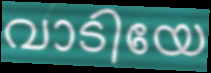
വാടിയേ